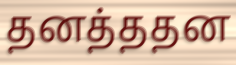
தனத்ததன